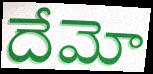
దేమో